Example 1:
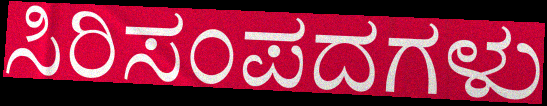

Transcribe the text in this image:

ಸಿರಿಸಂಪದಗಳು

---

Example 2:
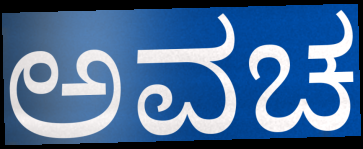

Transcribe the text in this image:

ಅವಚ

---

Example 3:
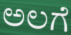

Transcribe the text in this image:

ಅಲಗೆ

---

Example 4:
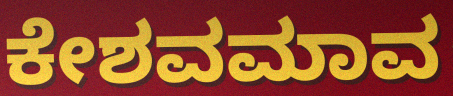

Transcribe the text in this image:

ಕೇಶವಮಾವ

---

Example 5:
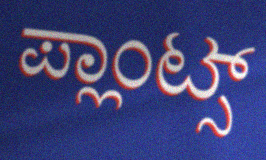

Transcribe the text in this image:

ಪ್ಲಾಂಟ್ಸ್